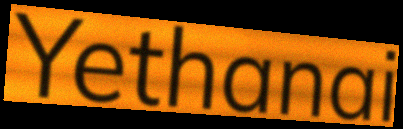
Yethanai